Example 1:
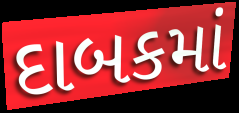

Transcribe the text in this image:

દાબકમાં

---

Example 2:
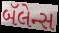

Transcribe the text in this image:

બૅલેન્સ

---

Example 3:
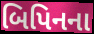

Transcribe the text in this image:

બિપિનના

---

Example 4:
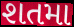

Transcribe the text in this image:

શતમા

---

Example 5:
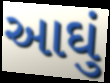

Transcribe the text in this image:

આઘું